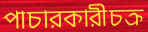
পাচারকারীচক্র